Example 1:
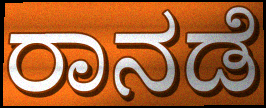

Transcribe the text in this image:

ರಾನಡೆ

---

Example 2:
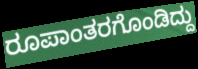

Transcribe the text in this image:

ರೂಪಾಂತರಗೊಂಡಿದ್ದು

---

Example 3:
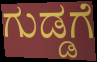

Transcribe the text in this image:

ಗುಡ್ಡಗೆ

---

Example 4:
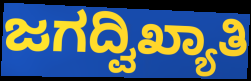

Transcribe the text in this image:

ಜಗದ್ವಿಖ್ಯಾತಿ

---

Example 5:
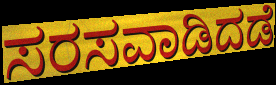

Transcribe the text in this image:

ಸರಸವಾಡಿದಡೆ